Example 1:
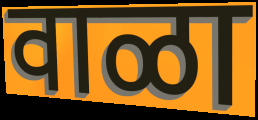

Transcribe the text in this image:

वाळा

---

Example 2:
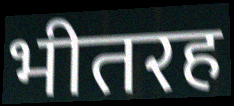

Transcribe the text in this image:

भीतरह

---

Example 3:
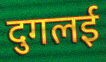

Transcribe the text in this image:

दुगलई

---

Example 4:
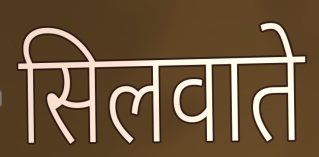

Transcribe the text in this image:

सिलवाते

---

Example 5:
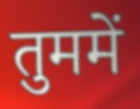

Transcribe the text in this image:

तुममें